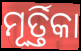
ମୂର୍ତ୍ତିକା